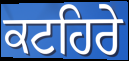
ਕਟਹਿਰੇ